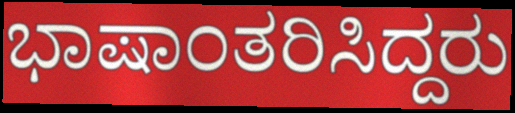
ಭಾಷಾಂತರಿಸಿದ್ದರು